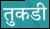
तुकडी